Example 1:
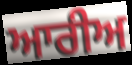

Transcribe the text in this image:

ਆਰੀਅ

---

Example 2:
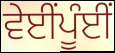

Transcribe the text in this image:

ਵੇਈਂਪੂੰਈਂ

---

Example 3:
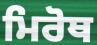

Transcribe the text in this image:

ਮਿਰੋਥ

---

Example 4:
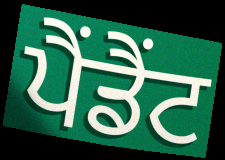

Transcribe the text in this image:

ਪੈਂਡੈਂਟ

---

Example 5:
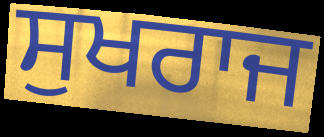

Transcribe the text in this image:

ਸੁਖਰਾਜ